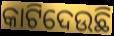
କାଟିଦେଉଛି